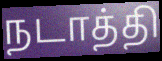
நடாத்தி